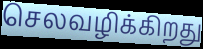
செலவழிக்கிறது